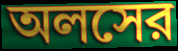
অলসের